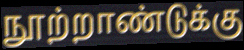
நூற்றாண்டுக்கு